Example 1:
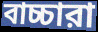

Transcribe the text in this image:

বাচ্চারা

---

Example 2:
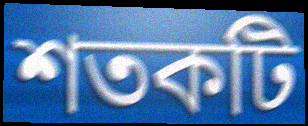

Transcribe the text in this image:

শতকটি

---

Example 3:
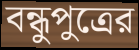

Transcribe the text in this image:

বন্ধুপুত্রের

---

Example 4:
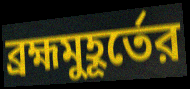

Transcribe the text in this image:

ব্রহ্মমুহূর্তের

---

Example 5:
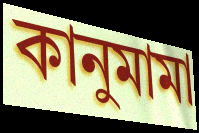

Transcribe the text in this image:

কানুমামা